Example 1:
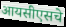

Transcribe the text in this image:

आयसीएसचे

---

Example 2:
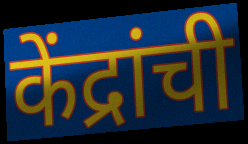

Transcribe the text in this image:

केंद्रांची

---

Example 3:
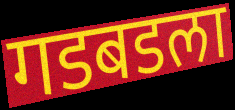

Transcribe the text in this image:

गडबडला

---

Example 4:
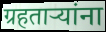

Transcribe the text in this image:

ग्रहताऱ्यांना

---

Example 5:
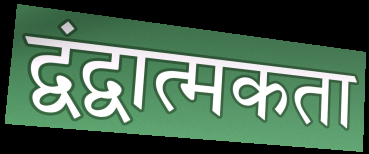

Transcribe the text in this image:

द्वंद्वात्मकता